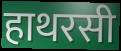
हाथरसी